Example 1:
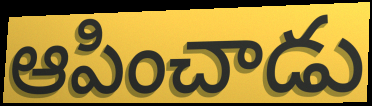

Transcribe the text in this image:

ఆపించాడు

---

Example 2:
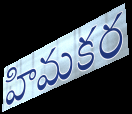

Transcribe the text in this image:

హిమకర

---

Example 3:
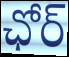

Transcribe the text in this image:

ఛోర్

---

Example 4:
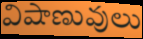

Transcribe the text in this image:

విషాణువులు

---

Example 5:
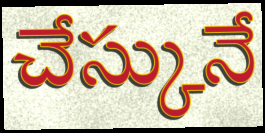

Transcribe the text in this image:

చేస్కునే